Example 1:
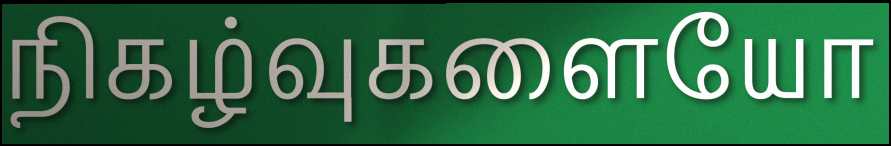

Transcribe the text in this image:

நிகழ்வுகளையோ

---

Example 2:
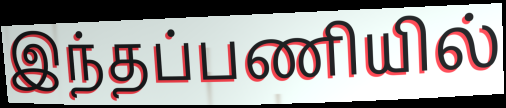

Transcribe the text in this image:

இந்தப்பணியில்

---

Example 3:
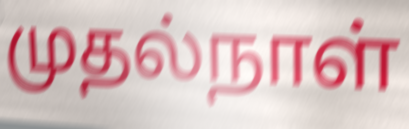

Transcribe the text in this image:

முதல்நாள்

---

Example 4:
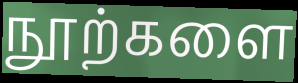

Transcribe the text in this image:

நூற்களை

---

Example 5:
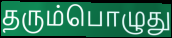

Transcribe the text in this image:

தரும்பொழுது